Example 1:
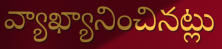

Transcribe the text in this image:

వ్యాఖ్యానించినట్లు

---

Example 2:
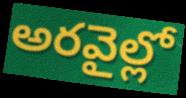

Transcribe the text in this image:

అరవైల్లో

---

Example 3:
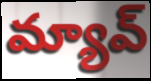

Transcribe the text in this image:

మ్యావ్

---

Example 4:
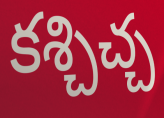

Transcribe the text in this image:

కశ్చిచ్చ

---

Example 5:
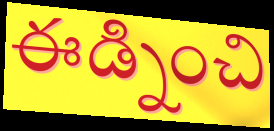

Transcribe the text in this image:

ఈడ్నించి